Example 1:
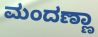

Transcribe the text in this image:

ಮಂದಣ್ಣಾ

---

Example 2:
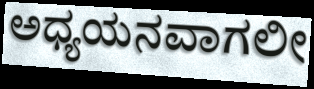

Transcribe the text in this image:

ಅಧ್ಯಯನವಾಗಲೀ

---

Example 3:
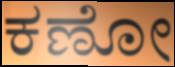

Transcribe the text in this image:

ಕಣೋ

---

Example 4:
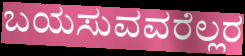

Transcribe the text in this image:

ಬಯಸುವವರೆಲ್ಲರ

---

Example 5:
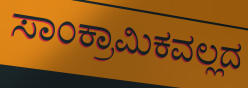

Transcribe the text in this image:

ಸಾಂಕ್ರಾಮಿಕವಲ್ಲದ